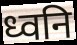
ध्‍वनि